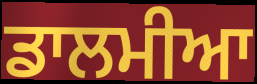
ਡਾਲਮੀਆ